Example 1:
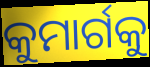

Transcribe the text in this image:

କୁମାର୍ଗକୁ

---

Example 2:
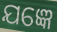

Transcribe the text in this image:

ଯଜ୍ଞେ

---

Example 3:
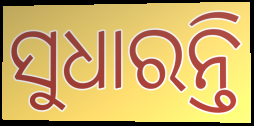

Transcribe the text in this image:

ସୁଧାରନ୍ତି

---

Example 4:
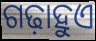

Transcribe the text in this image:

ଗଢ଼ାହୁଏ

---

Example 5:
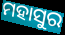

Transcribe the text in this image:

ମହାସୁର